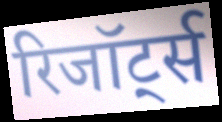
रिजॉर्ट्स